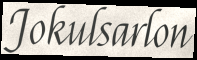
Jokulsarlon